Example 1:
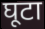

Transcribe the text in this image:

घूटा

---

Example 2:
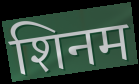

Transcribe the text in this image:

शिनम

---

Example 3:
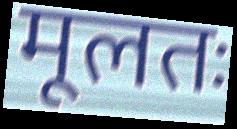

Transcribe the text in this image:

मूलतः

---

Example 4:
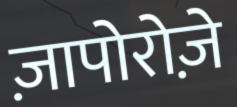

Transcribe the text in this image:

ज़ापोरोज़े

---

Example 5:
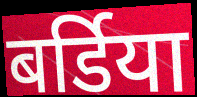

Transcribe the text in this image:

बर्डिया